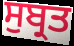
ਸੁਬ੍ਰਤ